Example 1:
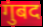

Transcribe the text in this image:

गुंबद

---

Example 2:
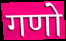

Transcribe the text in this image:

गणो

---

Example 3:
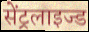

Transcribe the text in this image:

सेंट्रलाइज्ड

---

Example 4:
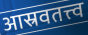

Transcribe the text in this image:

आस्रवतत्त्व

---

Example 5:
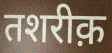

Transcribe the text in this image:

तशरीक़